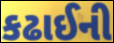
કઢાઈની